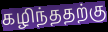
கழிந்ததற்கு